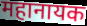
महानायक